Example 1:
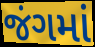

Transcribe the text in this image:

જંગમાં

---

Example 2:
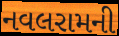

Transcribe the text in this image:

નવલરામની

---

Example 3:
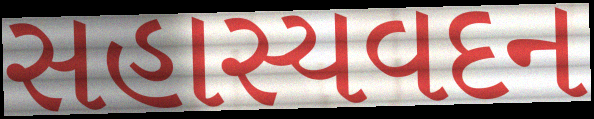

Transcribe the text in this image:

સહાસ્યવદન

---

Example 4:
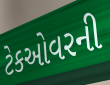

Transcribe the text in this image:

ટેકઓવરની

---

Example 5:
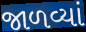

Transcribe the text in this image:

જાળવ્યાં